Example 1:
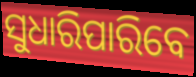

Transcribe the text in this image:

ସୁଧାରିପାରିବେ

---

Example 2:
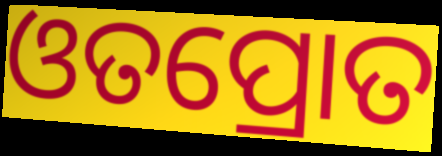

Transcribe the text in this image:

ଓତପ୍ରୋତ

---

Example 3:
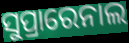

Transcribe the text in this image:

ସୁପ୍ରାରେନାଲ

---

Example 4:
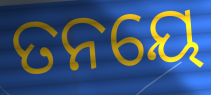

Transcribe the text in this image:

ତନୟେ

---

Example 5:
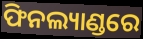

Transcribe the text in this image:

ଫିନଲ୍ୟାଣ୍ଡରେ